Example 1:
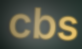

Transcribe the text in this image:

cbs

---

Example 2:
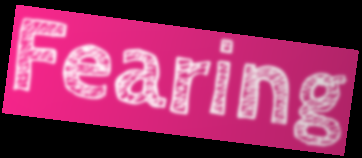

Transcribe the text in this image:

Fearing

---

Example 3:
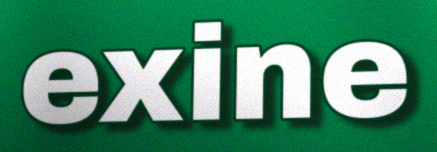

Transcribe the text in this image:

exine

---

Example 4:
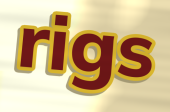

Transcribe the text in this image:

rigs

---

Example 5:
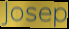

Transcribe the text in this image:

Josep